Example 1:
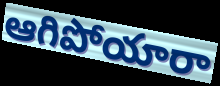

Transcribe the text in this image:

ఆగిపోయారా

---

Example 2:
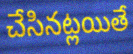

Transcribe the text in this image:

చేసినట్లయితే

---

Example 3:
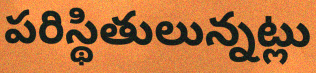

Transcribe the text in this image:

పరిస్థితులున్నట్లు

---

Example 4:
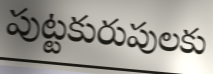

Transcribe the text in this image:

పుట్టకురుపులకు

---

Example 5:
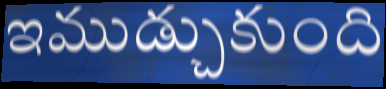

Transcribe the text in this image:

ఇముడ్చుకుంది